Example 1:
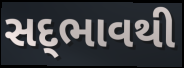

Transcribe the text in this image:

સદ્‍ભાવથી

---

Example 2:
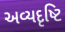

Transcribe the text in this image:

અવ્યદૃષ્ટિ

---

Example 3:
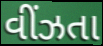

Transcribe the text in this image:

વીંઝતા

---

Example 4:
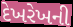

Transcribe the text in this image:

દેખરેખની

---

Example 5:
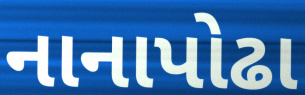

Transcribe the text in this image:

નાનાપોઢા